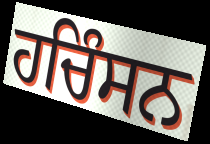
ਹਚਿੰਸਨ